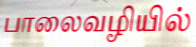
பாலைவழியில்